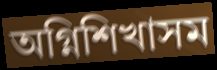
অগ্নিশিখাসম